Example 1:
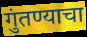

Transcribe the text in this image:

गुंतण्याचा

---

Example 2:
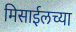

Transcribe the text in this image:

मिसाईलच्या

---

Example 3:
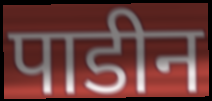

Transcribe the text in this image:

पाडीन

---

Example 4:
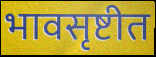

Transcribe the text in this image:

भावसृष्टीत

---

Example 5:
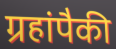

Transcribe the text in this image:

ग्रहांपैकी